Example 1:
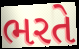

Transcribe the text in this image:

ભરતે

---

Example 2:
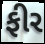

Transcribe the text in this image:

ફીર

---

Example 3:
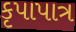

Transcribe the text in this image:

કૃપાપાત્ર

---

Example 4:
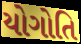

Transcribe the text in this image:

યોગોતિ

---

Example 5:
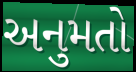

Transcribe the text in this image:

અનુમતો